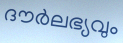
ദൗർലഭ്യവും